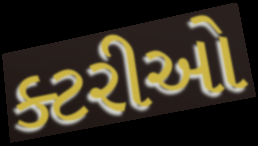
ક્ટરીઓ